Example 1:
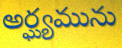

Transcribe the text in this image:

అర్ఘ్యమును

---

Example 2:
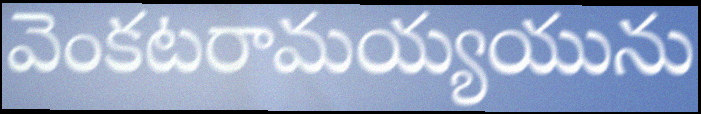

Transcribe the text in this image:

వెంకటరామయ్యయును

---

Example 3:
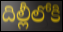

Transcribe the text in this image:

దిల్లీలోకి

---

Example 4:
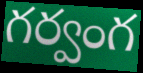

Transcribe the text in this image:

గర్వంగ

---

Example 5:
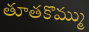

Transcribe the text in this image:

తూతకొమ్ము